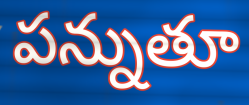
పన్నుతూ